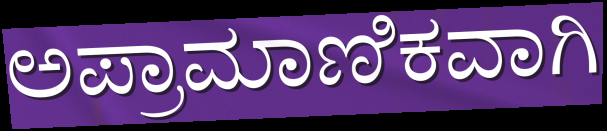
ಅಪ್ರಾಮಾಣಿಕವಾಗಿ